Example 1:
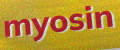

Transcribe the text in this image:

myosin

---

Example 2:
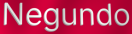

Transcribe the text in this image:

Negundo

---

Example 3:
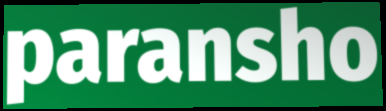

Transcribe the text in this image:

paransho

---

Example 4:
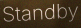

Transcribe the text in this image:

Standby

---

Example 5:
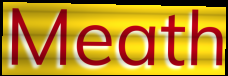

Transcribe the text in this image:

Meath